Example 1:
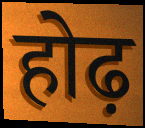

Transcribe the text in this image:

होढ़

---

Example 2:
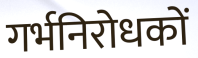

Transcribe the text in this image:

गर्भनिरोधकों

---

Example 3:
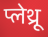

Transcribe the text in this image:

प्लेथ्रू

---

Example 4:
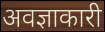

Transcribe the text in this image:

अवज्ञाकारी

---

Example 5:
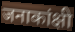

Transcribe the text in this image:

जनाकांक्षी